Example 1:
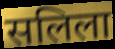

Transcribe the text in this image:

सलिला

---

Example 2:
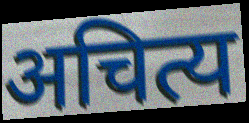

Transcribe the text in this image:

अचित्य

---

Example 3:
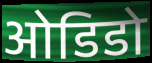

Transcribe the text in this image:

ओडिडो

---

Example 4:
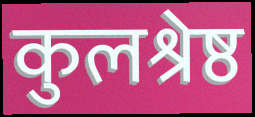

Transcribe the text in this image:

कुलश्रेष्ठ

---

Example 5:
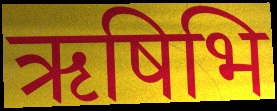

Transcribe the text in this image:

ऋषिभि